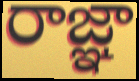
రాజ్ఞా